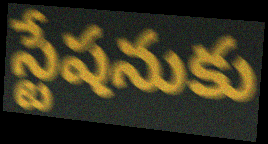
స్టేషనుకు